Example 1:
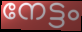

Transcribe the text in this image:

നേട്ടം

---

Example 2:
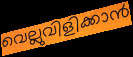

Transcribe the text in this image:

വെല്ലുവിളിക്കാൻ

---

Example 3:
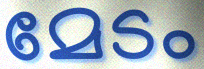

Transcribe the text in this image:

മേടം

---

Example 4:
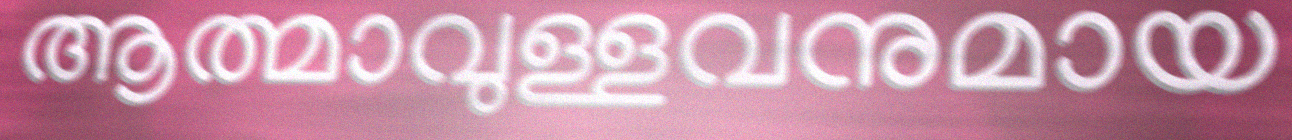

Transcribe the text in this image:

ആത്മാവുള്ളവനുമായ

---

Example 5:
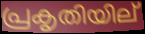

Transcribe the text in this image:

പ്രകൃതിയില്